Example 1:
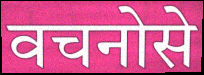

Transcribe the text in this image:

वचनोसे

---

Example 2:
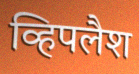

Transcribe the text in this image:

व्हिपलैश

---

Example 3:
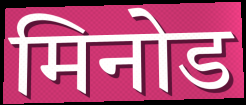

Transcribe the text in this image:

मिनोड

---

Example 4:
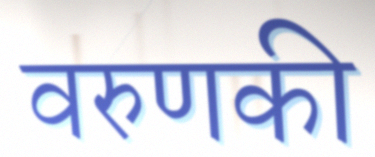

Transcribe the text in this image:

वरुणकी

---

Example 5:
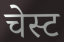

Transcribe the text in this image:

चेस्ट